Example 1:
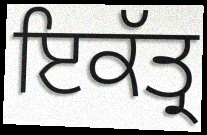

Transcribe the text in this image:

ਇਕੱਤ੍ਰ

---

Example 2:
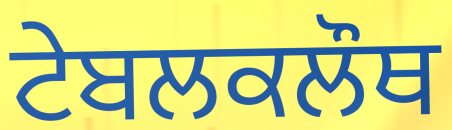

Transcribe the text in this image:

ਟੇਬਲਕਲੌਥ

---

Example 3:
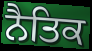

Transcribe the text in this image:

ਨੈਤਿਕ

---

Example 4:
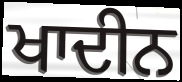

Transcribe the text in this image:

ਖਾਦੀਨ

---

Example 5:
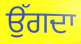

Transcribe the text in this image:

ਉੱਗਦਾ